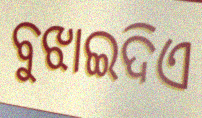
ବୁଝାଇଦିଏ